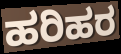
ಹರಿಹರ